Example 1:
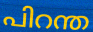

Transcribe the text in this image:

പിറന്ത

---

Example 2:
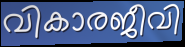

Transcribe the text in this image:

വികാരജീവി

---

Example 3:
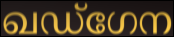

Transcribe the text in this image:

ഖഡ്ഗേന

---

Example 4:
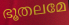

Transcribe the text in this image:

ഭൂതലമേ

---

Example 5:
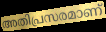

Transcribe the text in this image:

അതിപ്രസരമാണ്